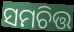
ସମଚିତ୍ତ